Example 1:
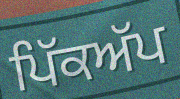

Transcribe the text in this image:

ਪਿੱਕਅੱਪ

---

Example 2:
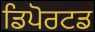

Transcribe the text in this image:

ਡਿਪੋਰਟਡ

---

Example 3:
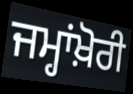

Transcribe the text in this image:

ਜਮ੍ਹਾਂਖ਼ੋਰੀ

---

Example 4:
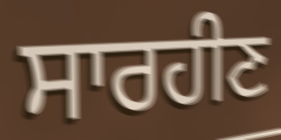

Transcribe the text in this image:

ਸਾਰਹੀਣ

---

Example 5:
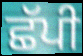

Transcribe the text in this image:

ਛੱਪੀ